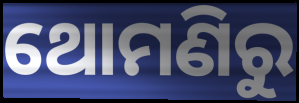
ଥୋମଣିରୁ